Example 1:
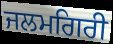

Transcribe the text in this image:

ਜਲਮਗਿਰੀ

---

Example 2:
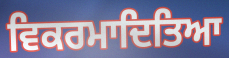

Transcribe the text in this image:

ਵਿਕਰਮਾਦਿਤਿਆ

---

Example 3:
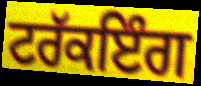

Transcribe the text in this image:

ਟਰੱਕਇੰਗ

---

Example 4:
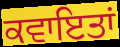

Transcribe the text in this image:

ਕਵਾਇਤਾਂ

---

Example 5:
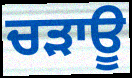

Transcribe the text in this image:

ਚੜਾਊ